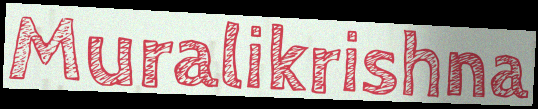
Muralikrishna